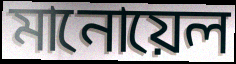
মানোয়েল